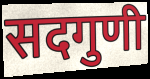
सदगुणी